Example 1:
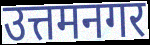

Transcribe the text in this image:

उत्तमनगर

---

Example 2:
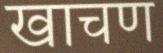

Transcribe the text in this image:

खाचण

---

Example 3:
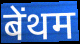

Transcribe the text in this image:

बेंथम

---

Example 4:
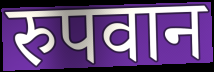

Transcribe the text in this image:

रुपवान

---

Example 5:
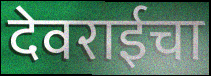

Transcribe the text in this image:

देवराईचा